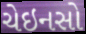
ચેઇનસો